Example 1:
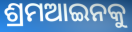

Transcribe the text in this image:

ଶ୍ରମଆଇନକୁ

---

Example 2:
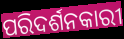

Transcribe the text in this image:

ପରିଦର୍ଶନକାରୀ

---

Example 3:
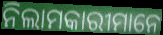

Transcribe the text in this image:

ନିଲାମକାରୀମାନେ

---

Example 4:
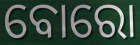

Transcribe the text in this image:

ବୋରୋ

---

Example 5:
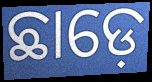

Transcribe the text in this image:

ଛାଡ଼େ